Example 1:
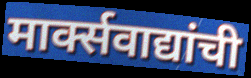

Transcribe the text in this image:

मार्क्सवाद्यांची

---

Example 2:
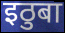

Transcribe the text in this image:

इठुबा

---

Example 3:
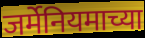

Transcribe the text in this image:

जर्मेनियमाच्या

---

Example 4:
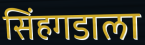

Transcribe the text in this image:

सिंहगडाला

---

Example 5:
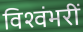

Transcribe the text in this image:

विश्वंभरीं